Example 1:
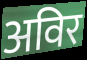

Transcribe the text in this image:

अविर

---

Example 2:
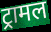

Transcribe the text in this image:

ट्रामल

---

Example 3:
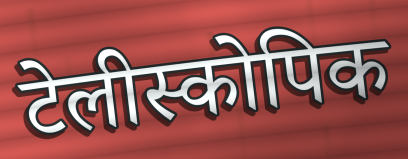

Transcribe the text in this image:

टेलीस्कोपिक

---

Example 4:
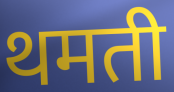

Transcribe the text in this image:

थमती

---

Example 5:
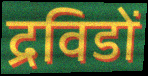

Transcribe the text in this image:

द्रविडों